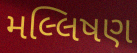
મલ્લિષણ